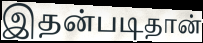
இதன்படிதான்